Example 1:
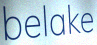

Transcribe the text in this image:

belake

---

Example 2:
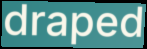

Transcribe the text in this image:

draped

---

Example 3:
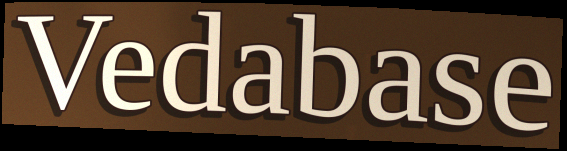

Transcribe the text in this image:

Vedabase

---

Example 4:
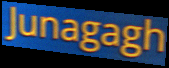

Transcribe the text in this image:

Junagagh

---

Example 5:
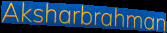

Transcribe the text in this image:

Aksharbrahman